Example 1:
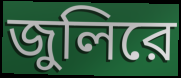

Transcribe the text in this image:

জুলিরে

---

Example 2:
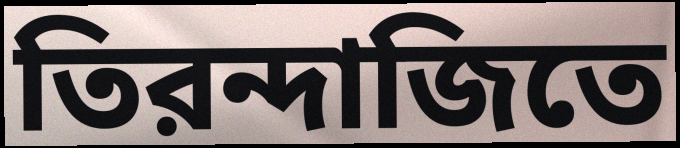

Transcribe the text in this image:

তিরন্দাজিতে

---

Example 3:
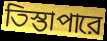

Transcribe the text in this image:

তিস্তাপারে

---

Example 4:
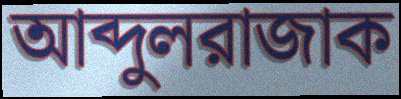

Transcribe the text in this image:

আব্দুলরাজাক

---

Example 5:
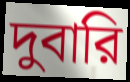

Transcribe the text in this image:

দুবারি